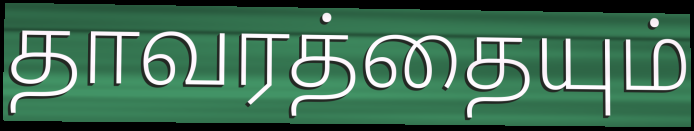
தாவரத்தையும்